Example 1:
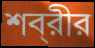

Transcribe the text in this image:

শব্‌রীর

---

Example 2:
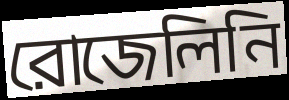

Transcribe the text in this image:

রোজেলিনি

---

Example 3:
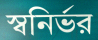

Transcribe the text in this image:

স্বনির্ভর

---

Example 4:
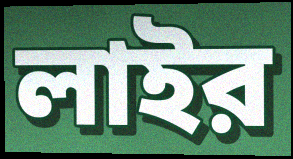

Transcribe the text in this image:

লাইর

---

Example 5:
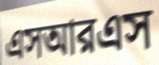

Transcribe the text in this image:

এসআরএস